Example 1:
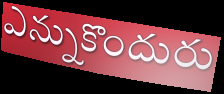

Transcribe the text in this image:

ఎన్నుకొందురు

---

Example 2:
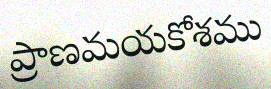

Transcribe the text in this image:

ప్రాణమయకోశము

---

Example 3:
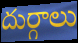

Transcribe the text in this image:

దుర్గాలు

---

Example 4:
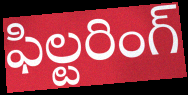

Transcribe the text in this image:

ఫిల్టరింగ్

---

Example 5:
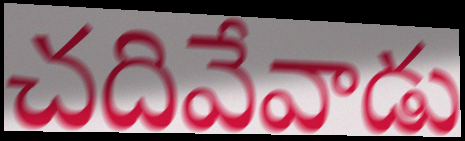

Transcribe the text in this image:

చదివేవాడు